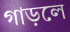
গাড়লে